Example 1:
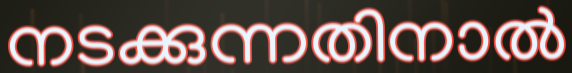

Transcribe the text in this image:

നടക്കുന്നതിനാൽ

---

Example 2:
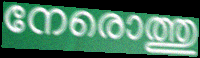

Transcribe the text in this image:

നേരൊത്തു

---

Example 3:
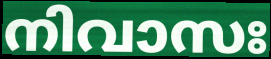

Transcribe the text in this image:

നിവാസഃ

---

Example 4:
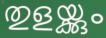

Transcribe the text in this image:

തുളയ്ക്കും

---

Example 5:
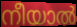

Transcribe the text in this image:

നീയാൽ